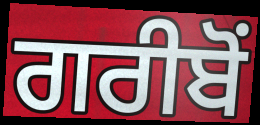
ਗਰੀਬੋਂ